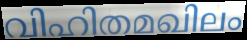
വിഹിതമഖിലം